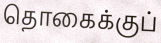
தொகைக்குப்